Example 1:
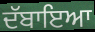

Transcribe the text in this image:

ਦੱਬਾਇਆ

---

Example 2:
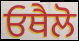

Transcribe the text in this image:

ਓਥੈਲੋ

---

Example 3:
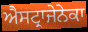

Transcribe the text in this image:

ਐਸਟ੍ਰਾਜੇਨੇਕਾ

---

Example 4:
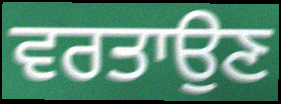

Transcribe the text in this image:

ਵਰਤਾਉਣ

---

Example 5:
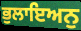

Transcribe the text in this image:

ਭੁਲਾਇਅਨੁ